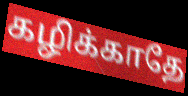
கழிக்காதே